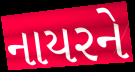
નાયરને